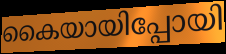
കൈയായിപ്പോയി